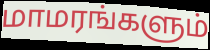
மாமரங்களும்